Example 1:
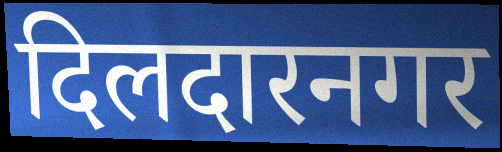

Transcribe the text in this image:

दिलदारनगर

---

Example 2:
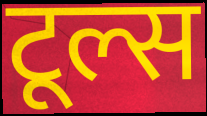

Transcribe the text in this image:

टूल्स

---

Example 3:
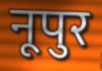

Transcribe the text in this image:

नूपुर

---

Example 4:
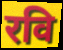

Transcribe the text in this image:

रवि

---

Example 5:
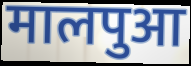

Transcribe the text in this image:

मालपुआ